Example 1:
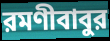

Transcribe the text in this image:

রমণীবাবুর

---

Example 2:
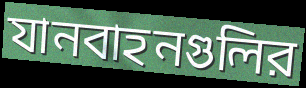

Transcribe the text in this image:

যানবাহনগুলির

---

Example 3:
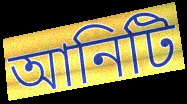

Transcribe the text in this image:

আনিটি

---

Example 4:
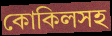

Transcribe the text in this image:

কোকিলসহ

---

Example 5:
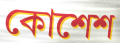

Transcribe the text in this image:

কোশেশ